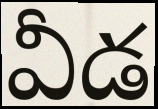
వీడ